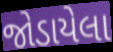
જોડાયેલા